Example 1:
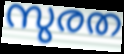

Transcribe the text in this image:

സുരത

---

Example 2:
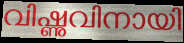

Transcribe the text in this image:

വിഷ്ണുവിനായി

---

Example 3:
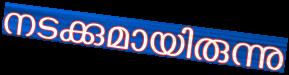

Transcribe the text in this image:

നടക്കുമായിരുന്നു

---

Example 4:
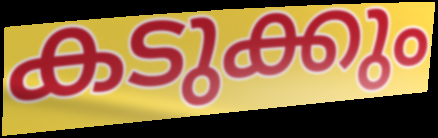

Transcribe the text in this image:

കടുക്കും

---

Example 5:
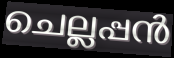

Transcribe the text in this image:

ചെല്ലപ്പൻ